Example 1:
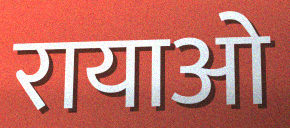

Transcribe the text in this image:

रायाओ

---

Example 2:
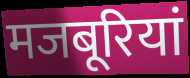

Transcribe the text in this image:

मजबूरियां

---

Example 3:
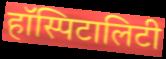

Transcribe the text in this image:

हॉस्पिटालिटी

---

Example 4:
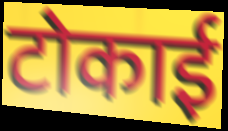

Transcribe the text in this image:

टोकाई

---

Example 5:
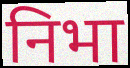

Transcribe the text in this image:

निभा